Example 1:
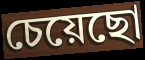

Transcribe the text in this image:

চেয়েছো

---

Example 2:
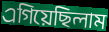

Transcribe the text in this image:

এগিয়েছিলাম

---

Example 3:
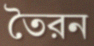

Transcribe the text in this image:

তৈরন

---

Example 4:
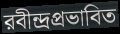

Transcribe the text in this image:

রবীন্দ্রপ্রভাবিত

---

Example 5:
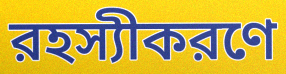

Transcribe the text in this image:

রহস্যীকরণে